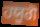
ਹਯੂਗੋ